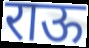
राऊ